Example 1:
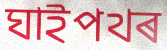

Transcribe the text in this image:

ঘাইপথৰ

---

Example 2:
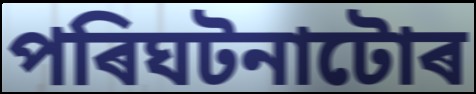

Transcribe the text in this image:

পৰিঘটনাটোৰ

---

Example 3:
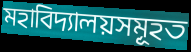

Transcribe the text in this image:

মহাবিদ্যালয়সমূহত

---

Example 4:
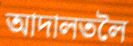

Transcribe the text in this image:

আদালতলৈ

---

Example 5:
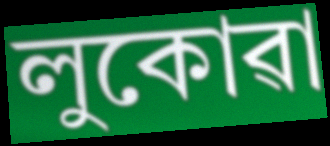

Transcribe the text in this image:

লুকোৱা